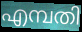
എമ്പതി